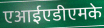
एआईएडीएमके